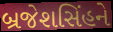
બ્રજેશસિંહને